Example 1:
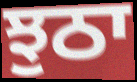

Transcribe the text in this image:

ਝੁਠਾ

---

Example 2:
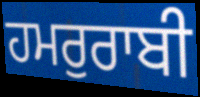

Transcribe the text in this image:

ਹਮਰੁਰਾਬੀ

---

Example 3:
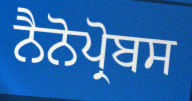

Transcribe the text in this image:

ਨੈਨੋਪ੍ਰੋਬਸ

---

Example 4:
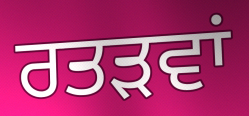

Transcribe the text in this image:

ਰਤੜਵਾਂ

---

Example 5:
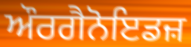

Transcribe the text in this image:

ਔਰਗੈਨੋਇਡਜ਼